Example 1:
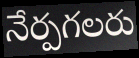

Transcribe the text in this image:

నేర్పగలరు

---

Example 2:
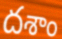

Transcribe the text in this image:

దశాం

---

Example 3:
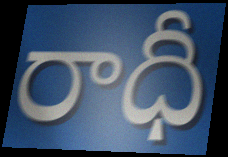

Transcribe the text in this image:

రాధీ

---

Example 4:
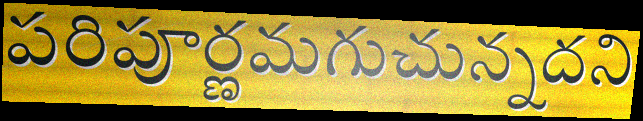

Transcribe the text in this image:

పరిపూర్ణమగుచున్నదని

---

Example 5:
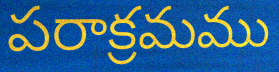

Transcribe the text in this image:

పరాక్రమము